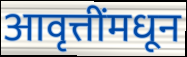
आवृत्तींमधून